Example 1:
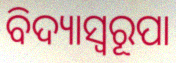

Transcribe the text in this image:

ବିଦ୍ୟାସ୍ୱରୂପା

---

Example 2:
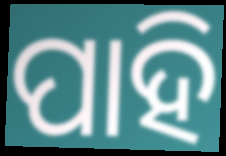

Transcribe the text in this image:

ପାହି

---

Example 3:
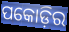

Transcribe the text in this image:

ପକୋଡ଼ିର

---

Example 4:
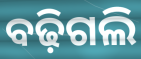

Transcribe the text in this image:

ବଢ଼ିଗଲି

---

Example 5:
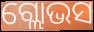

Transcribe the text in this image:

ଗ୍ଲୋଭସ